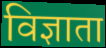
विज्ञाता